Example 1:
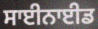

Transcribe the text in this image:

ਸਾਈਨਾਈਡ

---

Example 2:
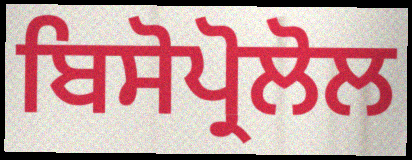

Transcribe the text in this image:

ਬਿਸੋਪ੍ਰੋਲੋਲ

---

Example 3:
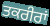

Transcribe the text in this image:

ਤਕਰੀਰਾਂ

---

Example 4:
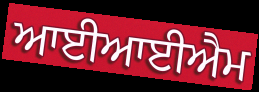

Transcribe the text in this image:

ਆਈਆਈਐਮ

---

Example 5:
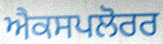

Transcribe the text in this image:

ਐਕਸਪਲੋਰਰ